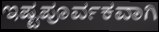
ಇಷ್ಟಪೂರ್ವಕವಾಗಿ